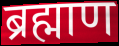
ब्रह्माण